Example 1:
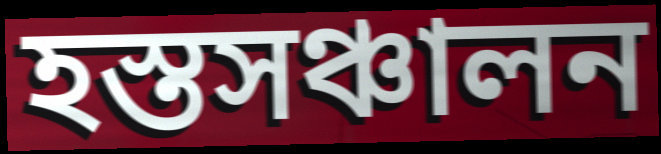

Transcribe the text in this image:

হস্তসঞ্চালন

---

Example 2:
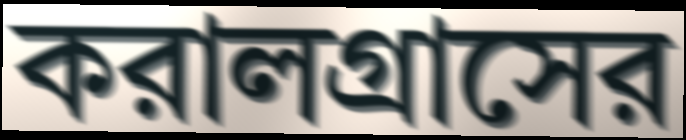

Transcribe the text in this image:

করালগ্রাসের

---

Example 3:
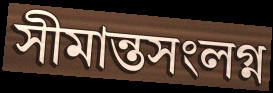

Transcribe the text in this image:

সীমান্তসংলগ্ন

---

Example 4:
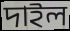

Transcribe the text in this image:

দাইল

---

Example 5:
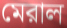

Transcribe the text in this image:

মেরাল